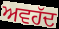
ਅਵਹੱਦ